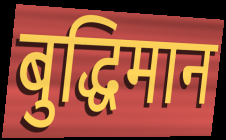
बुद्धिमान